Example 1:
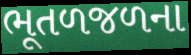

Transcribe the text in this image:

ભૂતળજળના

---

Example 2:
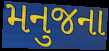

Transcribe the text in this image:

મનુજના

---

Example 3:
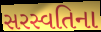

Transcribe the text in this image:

સરસ્વતિના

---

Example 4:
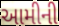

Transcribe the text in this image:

આમીની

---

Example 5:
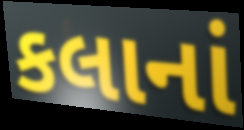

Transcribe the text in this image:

કલાનાં